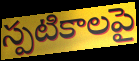
స్పటికాలపై